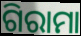
ଗିରାମା